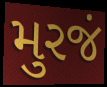
મુરજં